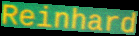
Reinhard